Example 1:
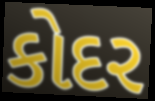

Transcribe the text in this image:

કોદર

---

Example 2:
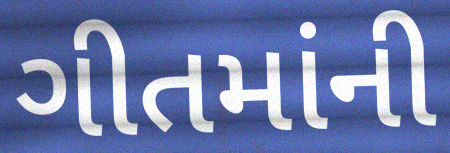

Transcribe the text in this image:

ગીતમાંની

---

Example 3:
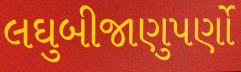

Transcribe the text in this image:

લઘુબીજાણુપર્ણો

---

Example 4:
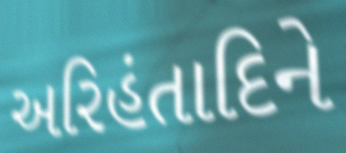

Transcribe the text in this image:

અરિહંતાદિને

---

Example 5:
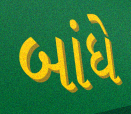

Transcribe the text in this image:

બાંધે